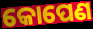
କୋପେଣ